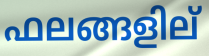
ഫലങ്ങളില്